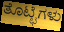
ತೊಟ್ಟೆಗಳು